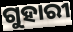
ଗୁହାରୀ